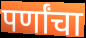
पर्णांचा